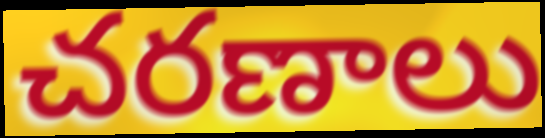
చరణాలు